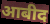
आबीद